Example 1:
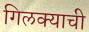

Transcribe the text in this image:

गिलक्याची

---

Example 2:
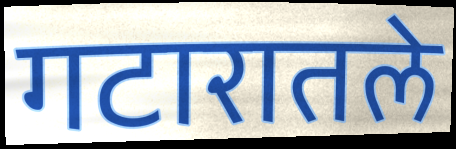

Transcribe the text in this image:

गटारातले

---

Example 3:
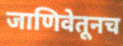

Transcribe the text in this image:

जाणिवेतूनच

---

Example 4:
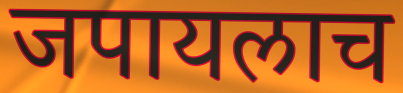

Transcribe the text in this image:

जपायलाच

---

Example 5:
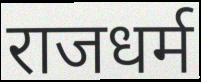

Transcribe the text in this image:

राजधर्म